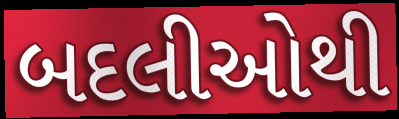
બદલીઓથી